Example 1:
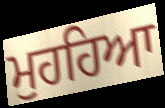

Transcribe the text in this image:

ਮੁਹਹਿਆ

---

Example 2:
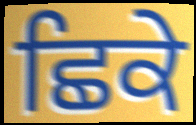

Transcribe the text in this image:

ਛਿਕੇ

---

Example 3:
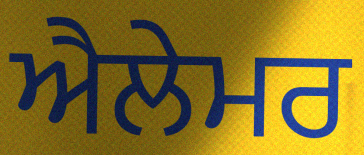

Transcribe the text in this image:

ਐਲੇਮਰ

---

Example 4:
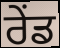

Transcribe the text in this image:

ਰੇਂਡ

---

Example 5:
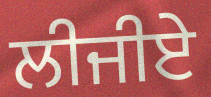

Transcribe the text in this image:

ਲੀਜੀਏ